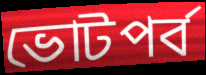
ভোটপর্ব